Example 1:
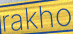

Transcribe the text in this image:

rakho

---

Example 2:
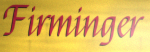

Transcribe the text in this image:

Firminger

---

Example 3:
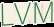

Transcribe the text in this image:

LVM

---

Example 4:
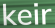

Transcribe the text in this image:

keir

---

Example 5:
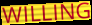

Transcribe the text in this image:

WILLING